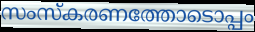
സംസ്കരണത്തോടൊപ്പം